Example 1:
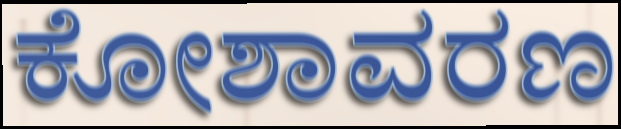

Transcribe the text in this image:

ಕೋಶಾವರಣ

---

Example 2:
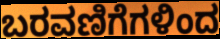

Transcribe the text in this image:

ಬರವಣಿಗೆಗಳಿಂದ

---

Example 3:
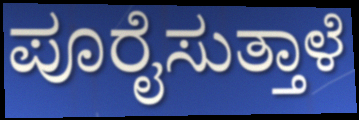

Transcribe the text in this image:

ಪೂರೈಸುತ್ತಾಳೆ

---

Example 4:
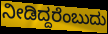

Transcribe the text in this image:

ನೀಡಿದ್ದರೆಂಬುದು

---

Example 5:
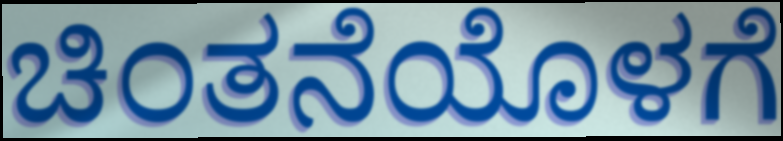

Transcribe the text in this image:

ಚಿಂತನೆಯೊಳಗೆ